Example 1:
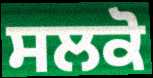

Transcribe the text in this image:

ਸਲਕੋ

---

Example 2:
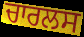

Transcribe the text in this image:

ਚਾਰਲਸ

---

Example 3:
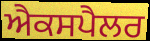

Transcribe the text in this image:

ਐਕਸਪੈਲਰ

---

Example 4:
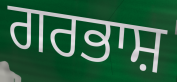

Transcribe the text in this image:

ਗਰਭਾਸ਼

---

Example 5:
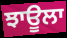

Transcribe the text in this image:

ਝਾਊਲਾ